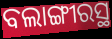
ବଲାଙ୍ଗୀରସ୍ଥ